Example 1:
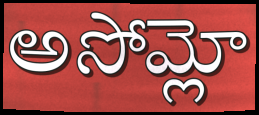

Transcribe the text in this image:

అసోమ్లో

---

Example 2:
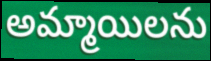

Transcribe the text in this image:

అమ్మాయిలను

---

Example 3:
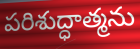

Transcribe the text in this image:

పరిశుద్ధాత్మను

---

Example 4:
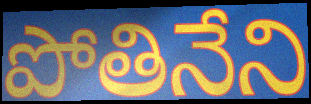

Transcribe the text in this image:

పోతినేని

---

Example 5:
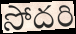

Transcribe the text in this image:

సోదరి